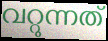
വറ്റുന്നത്